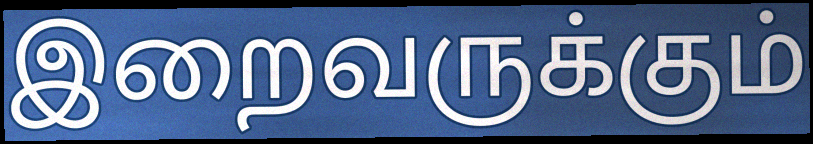
இறைவருக்கும்